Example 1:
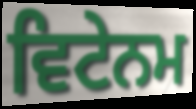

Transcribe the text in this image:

ਵਿਟੇਨਮ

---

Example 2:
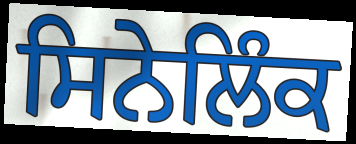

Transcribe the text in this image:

ਸਿਨੇਲਿੰਕ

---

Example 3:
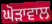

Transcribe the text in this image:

ਘੋੜਾਵਾਲ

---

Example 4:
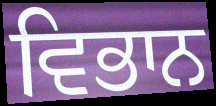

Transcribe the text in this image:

ਵਿਭਾਨ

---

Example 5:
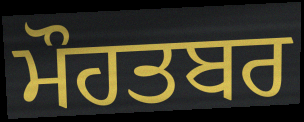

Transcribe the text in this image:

ਮੌਹਤਬਰ